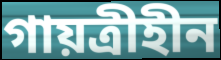
গায়ত্রীহীন